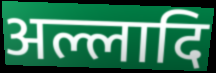
अल्लादि